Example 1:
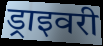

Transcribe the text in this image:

ड्राइवरी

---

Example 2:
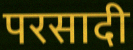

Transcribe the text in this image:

परसादी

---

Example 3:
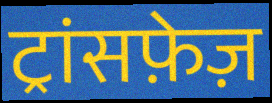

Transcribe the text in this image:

ट्रांसफ़ेज़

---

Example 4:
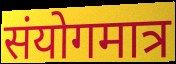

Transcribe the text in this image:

संयोगमात्र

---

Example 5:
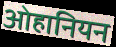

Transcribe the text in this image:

ओहानियन